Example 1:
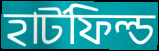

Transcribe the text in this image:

হার্টফিল্ড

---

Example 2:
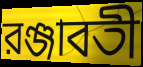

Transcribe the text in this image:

রঞ্জাবতী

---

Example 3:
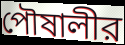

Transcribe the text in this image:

পৌষালীর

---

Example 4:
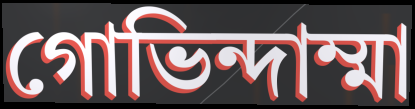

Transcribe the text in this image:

গোভিন্দাম্মা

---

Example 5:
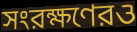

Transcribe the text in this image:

সংরক্ষণেরও